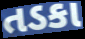
તડકા